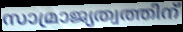
സാമ്രാജ്യത്വത്തിന്